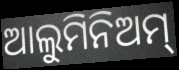
ଆଲୁମିନିଅମ୍